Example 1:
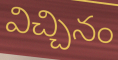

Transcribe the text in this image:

విచ్చినం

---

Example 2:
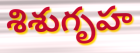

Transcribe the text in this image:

శిశుగృహ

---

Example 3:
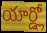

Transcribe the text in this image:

యార్డ్లో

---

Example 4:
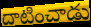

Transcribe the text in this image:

దాటించాడు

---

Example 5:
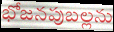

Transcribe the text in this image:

భోజనపుబల్లను